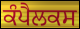
ਕੰਪੈਲਕਸ